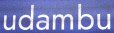
udambu